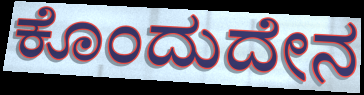
ಕೊಂದುದೇನ